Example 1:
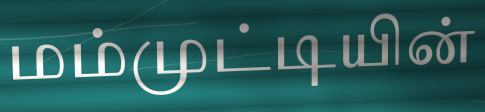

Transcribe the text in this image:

மம்முட்டியின்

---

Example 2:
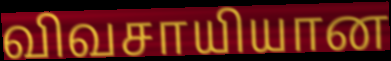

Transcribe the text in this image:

விவசாயியான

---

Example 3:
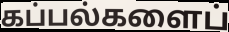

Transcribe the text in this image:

கப்பல்களைப்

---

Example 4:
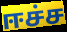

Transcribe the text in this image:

ஈச்ச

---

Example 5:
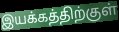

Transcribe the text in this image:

இயக்கத்திற்குள்